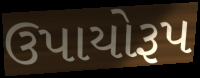
ઉપાયોરૂપ